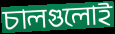
চালগুলোই